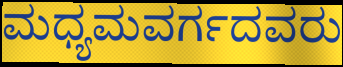
ಮಧ್ಯಮವರ್ಗದವರು